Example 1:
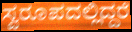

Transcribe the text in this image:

ಸ್ವರೂಪದಲ್ಲಿದ್ದರೆ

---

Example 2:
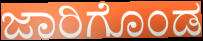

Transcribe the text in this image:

ಜಾರಿಗೊಂಡ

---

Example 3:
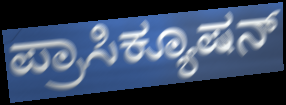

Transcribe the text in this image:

ಪ್ರಾಸಿಕ್ಯೂಷನ್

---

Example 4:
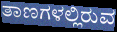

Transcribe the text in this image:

ತಾಣಗಳಲ್ಲಿರುವ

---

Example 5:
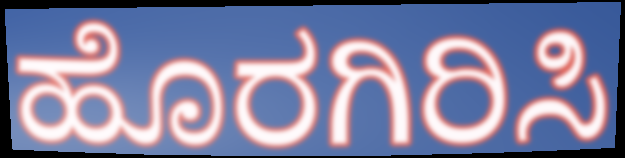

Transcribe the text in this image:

ಹೊರಗಿರಿಸಿ